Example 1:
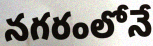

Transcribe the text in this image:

నగరంలోనే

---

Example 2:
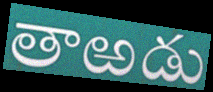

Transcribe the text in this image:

తాఱడు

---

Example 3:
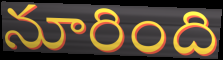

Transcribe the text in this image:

నూరింది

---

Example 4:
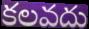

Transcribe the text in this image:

కలవదు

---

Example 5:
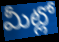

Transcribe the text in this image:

మీట్లో